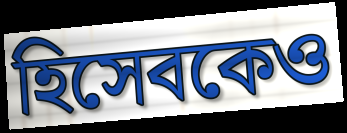
হিসেবকেও